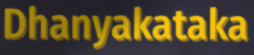
Dhanyakataka